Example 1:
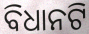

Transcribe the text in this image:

ବିଧାନଟି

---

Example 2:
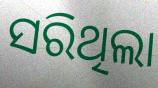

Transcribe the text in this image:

ସରିଥିଲା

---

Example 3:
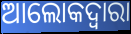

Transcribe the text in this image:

ଆଲୋକଦ୍ୱାରା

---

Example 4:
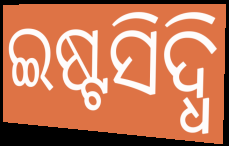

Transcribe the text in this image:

ଇଷ୍ଟସିଦ୍ଧି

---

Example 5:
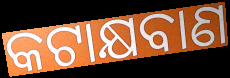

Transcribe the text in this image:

କଟାକ୍ଷବାଣ